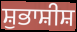
ਸ਼ੁਭਾਸ਼ੀਸ਼